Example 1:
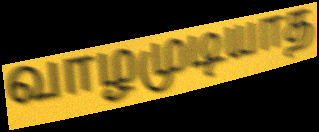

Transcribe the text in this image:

வாழமுடியாத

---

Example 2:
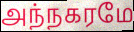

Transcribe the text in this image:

அந்நகரமே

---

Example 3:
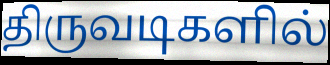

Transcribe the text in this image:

திருவடிகளில்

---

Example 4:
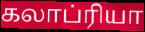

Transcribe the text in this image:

கலாப்ரியா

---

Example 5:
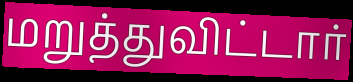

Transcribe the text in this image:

மறுத்துவிட்டார்